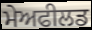
ਮੇਅਫੀਲਡ